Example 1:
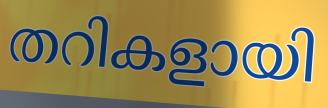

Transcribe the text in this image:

തറികളായി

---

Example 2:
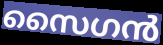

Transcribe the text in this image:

സൈഗൻ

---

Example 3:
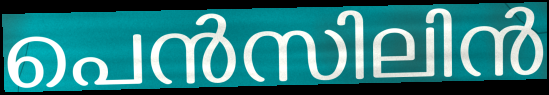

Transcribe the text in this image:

പെൻസിലിൻ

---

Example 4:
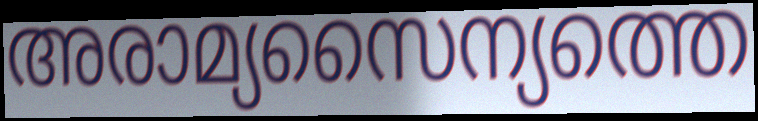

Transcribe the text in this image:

അരാമ്യസൈന്യത്തെ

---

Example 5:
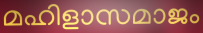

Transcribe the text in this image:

മഹിളാസമാജം